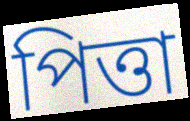
পিত্তা